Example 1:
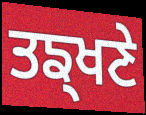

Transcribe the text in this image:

ਤਙ੍ਖਣੇ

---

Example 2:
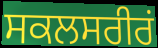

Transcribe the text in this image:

ਸਕਲਸਰੀਰਂ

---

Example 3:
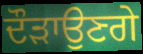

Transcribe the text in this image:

ਦੌੜਾਉਣਗੇ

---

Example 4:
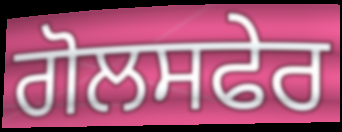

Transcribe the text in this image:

ਗੋਲਸਫੇਰ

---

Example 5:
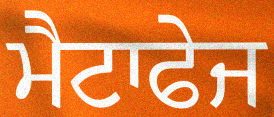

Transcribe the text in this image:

ਮੈਟਾਫੇਜ